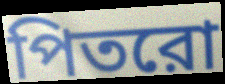
পিতরো